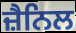
ਜ਼ੈਨਿਲ